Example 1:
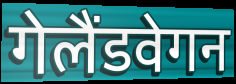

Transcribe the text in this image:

गेलैंडवेगन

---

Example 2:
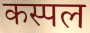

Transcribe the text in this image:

कस्पल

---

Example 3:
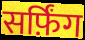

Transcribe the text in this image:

सर्फ़िंग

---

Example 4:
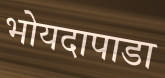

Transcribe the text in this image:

भोयदापाडा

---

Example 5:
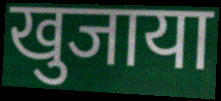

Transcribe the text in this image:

खुजाया